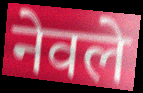
नेवले